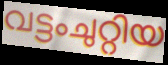
വട്ടംചുറ്റിയ